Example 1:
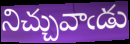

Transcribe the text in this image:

నిచ్చువాఁడు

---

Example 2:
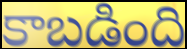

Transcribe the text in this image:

కాబడింది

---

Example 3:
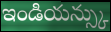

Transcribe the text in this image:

ఇండియన్స్కు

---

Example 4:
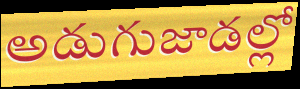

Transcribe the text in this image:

అడుగుజాడల్లో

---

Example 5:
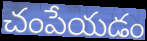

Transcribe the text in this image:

చంపేయడం